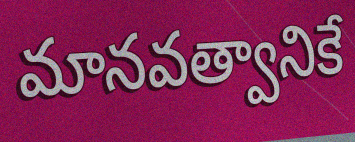
మానవత్వానికే